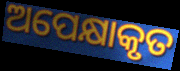
ଅପେକ୍ଷାକୃତ